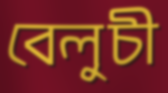
বেলুচী